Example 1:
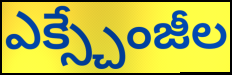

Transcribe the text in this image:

ఎక్స్చేంజీల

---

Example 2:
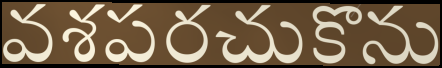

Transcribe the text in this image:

వశపరచుకొను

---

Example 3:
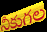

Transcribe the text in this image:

నీకుగల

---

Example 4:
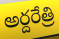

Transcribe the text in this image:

అర్దరేత్రి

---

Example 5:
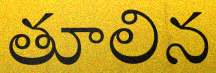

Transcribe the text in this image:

తూలిన